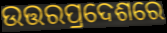
ଉତ୍ତରପ୍ରଦେଶରେ